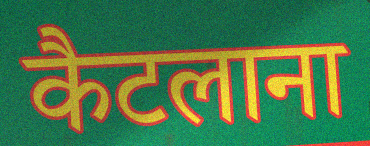
कैटलाना